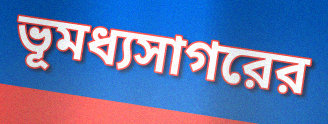
ভূমধ্যসাগরের